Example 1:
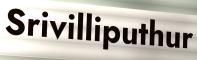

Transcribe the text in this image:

Srivilliputhur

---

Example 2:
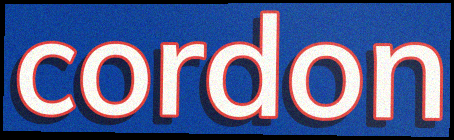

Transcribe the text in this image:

cordon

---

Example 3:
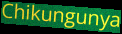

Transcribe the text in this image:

Chikungunya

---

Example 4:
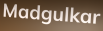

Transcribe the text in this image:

Madgulkar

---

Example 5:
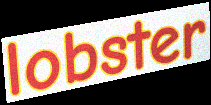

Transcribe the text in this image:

lobster